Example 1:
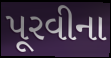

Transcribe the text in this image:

પૂરવીના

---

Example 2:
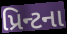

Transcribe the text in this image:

પ્રિન્ટના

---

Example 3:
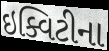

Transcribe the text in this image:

ઇક્વિટીના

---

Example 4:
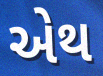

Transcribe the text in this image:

એથ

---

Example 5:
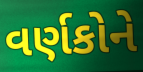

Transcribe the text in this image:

વર્ણકોને